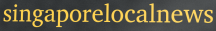
singaporelocalnews